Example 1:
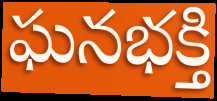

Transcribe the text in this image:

ఘనభక్తి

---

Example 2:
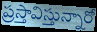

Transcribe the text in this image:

ప్రస్తావిస్తున్నారో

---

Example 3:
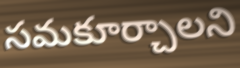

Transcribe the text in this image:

సమకూర్చాలని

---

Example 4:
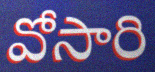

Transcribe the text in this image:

వోసారి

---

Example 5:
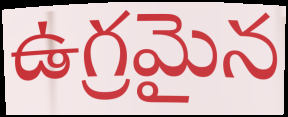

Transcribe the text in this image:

ఉగ్రమైన